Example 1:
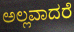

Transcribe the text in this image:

ಅಲ್ಲವಾದರೆ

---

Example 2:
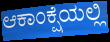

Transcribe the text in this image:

ಆಕಾಂಕ್ಷೆಯಲ್ಲಿ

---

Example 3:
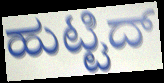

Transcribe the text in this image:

ಹುಟ್ಟಿದ್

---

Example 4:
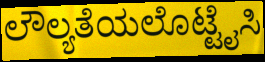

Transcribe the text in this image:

ಲೌಲ್ಯತೆಯಲೊಟ್ಟೈಸಿ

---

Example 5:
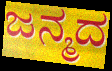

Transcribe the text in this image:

ಜನ್ಮದ